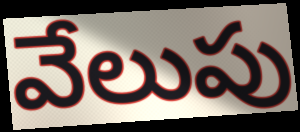
వేలుపు